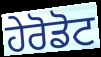
ਹੇਰੋਡੋਟ